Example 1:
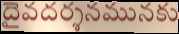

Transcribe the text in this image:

దైవదర్శనమునకు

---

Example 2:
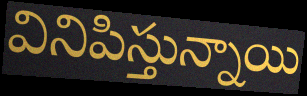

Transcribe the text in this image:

వినిపిస్తున్నాయి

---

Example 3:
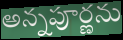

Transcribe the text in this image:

అన్నపూర్ణను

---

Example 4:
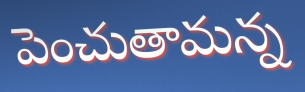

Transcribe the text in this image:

పెంచుతామన్న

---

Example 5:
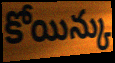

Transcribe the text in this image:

కోయిన్కు